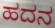
ಹದನ